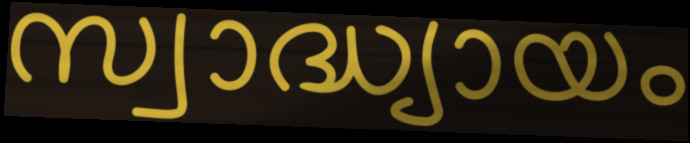
സ്വാദ്ധ്യായം